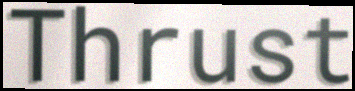
Thrust